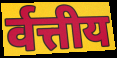
र्वत्तीय